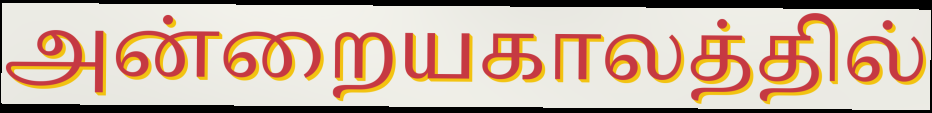
அன்றையகாலத்தில்